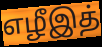
எழீஇத்